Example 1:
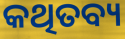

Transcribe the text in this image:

କଥିତବ୍ୟ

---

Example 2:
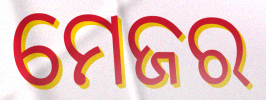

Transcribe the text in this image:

ମେଜର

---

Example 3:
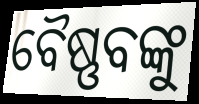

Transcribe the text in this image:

ବୈଷ୍ଣବଙ୍କୁ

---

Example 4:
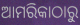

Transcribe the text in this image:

ଆମରିକାଠାରୁ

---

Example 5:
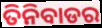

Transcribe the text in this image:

ତିନିବାଡର